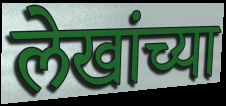
लेखांच्या